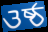
ওষ্ঠ